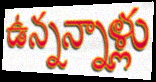
ఉన్నన్నాళ్లు